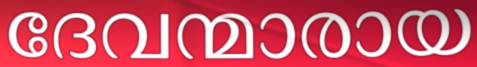
ദേവന്മാരായ